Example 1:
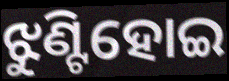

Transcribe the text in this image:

ଝୁଣ୍ଟିହୋଇ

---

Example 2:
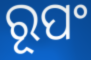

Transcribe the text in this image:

ରୂପଂ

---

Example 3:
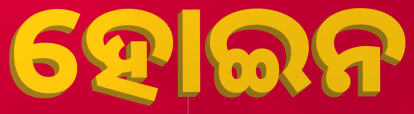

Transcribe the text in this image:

ହୋଇନ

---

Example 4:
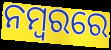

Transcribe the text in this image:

ନମ୍ବରରେ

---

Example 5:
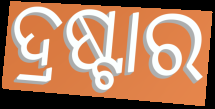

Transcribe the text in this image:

ଦ୍ରଷ୍ଟାର